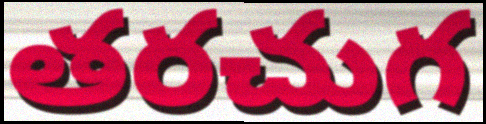
తరచుగ